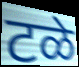
टळे